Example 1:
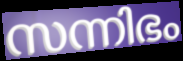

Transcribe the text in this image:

സന്നിഭം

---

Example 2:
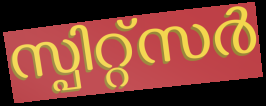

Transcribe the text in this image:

സ്പിറ്റ്സർ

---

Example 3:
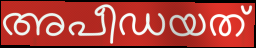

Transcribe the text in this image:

അപീഡയത്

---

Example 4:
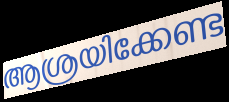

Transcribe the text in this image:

ആശ്രയിക്കേണ്ട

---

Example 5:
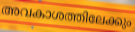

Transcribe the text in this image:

അവകാശത്തിലേക്കും